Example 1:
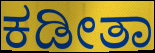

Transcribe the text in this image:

ಕಡೀತಾ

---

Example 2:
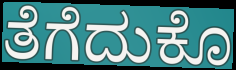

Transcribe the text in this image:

ತೆಗೆದುಕೊ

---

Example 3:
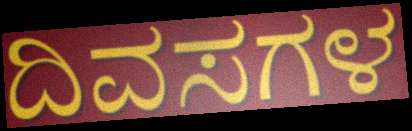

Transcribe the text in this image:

ದಿವಸಗಳ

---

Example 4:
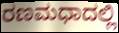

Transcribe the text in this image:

ರಣಮಧಾದಲ್ಲಿ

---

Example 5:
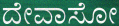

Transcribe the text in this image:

ದೇವಾಸೋ